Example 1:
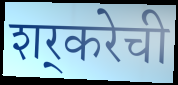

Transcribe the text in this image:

शर्करेची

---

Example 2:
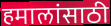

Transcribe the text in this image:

हमालांसाठी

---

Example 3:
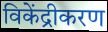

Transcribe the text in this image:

विकेंद्रीकरण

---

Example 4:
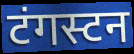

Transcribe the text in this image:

टंगस्टन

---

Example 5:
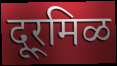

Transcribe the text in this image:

दूर्मिळ